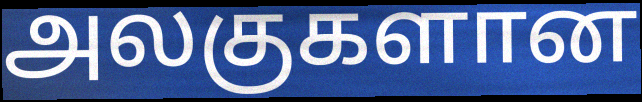
அலகுகளான